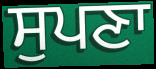
ਸੁਪਣਾ